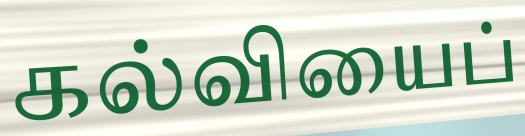
கல்வியைப்